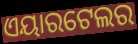
ଏୟାରଟେଲର